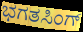
ಭಗತಸಿಂಗ್